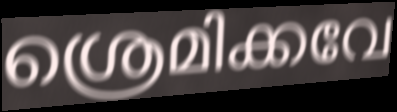
ശ്രെമിക്കവേ